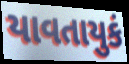
યાવતાયુકં